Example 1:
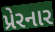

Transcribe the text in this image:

પ્રેરનાર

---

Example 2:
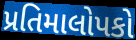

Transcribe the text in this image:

પ્રતિમાલોપકો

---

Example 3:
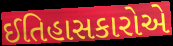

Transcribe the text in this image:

ઈતિહાસકારોએ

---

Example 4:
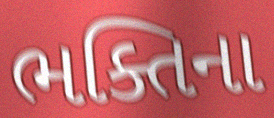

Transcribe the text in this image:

ભક્તિના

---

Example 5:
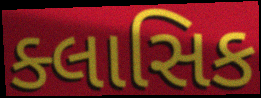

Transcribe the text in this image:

ક્લાસિક